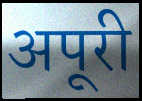
अपूरी